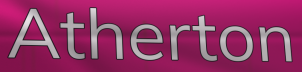
Atherton